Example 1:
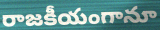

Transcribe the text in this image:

రాజకీయంగానూ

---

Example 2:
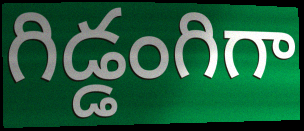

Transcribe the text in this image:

గిడ్డంగిగా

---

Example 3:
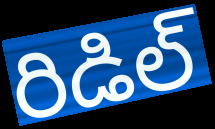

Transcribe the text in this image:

రిడిల్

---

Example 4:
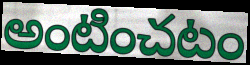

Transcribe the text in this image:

అంటించటం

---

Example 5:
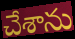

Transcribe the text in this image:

చేశాను